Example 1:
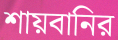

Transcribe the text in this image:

শায়বানির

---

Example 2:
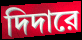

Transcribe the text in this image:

দিদারে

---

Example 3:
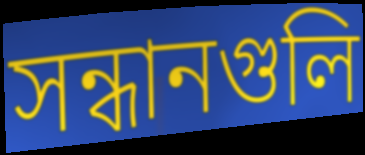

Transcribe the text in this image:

সন্ধানগুলি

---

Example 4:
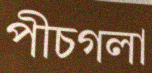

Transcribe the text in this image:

পীচগলা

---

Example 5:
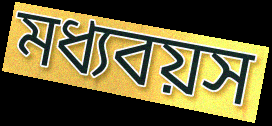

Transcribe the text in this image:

মধ্যবয়স